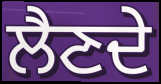
ਲੈਣਦੇ